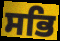
ਸਭਿ